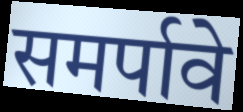
समर्पावे